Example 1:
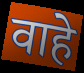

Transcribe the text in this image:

वाहे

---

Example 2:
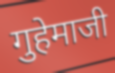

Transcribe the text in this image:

गुहेमाजी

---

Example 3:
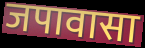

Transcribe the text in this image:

जपावासा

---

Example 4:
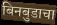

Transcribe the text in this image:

बिनबुडाचा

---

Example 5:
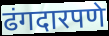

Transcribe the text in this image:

ढंगदारपणे